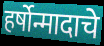
हर्षोन्मादाचे